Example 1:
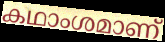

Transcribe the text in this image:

കഥാംശമാണ്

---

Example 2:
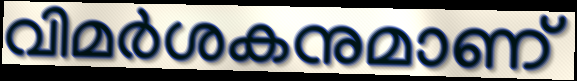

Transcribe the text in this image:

വിമർശകനുമാണ്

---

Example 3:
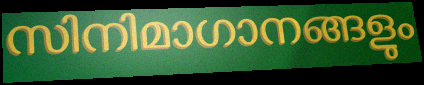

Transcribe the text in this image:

സിനിമാഗാനങ്ങളും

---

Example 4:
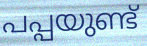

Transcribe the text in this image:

പപ്പയുണ്ട്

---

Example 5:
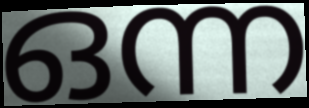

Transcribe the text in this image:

ഒന്ന